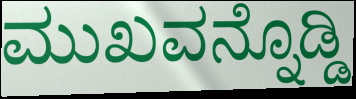
ಮುಖವನ್ನೊಡ್ಡಿ